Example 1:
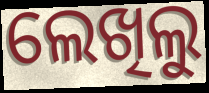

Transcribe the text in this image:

ଲେଖିଲୁ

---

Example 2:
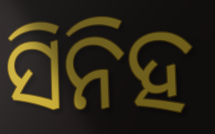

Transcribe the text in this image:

ସିନିହ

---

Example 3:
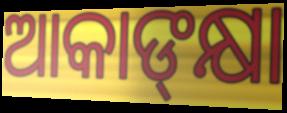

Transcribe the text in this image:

ଆକାଙ୍‍କ୍ଷା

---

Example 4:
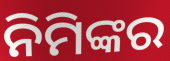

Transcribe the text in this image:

ନିମିଙ୍କର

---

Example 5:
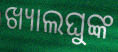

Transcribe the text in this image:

ଖ୍ୟାଲଘୁଙ୍କ